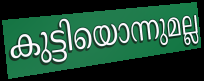
കുട്ടിയൊന്നുമല്ല